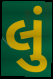
લું